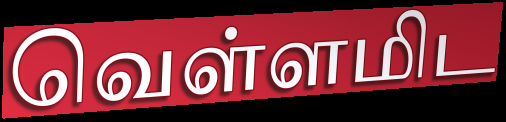
வெள்ளமிட